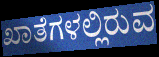
ಖಾತೆಗಳಲ್ಲಿರುವ